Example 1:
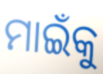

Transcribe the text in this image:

ମାଇଁକୁ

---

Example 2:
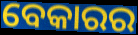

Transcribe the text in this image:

ବେକାରର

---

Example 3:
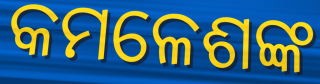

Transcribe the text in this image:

କମଳେଶଙ୍କ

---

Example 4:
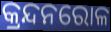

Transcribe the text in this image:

କ୍ରନ୍ଦନରୋଳ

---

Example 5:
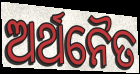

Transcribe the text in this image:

ଅର୍ଥନୈତ